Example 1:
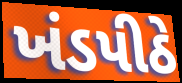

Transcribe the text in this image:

ખંડપીઠે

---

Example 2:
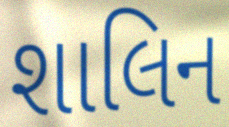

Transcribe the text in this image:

શાલિન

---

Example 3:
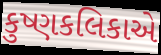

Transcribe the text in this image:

કુષ્ણકલિકાએ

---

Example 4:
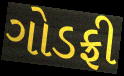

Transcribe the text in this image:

ગોડફ્રી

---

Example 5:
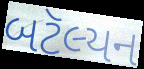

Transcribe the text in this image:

બટૅલ્યન